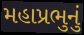
મહાપ્રભુનું